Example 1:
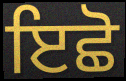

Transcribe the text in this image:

ਇਛੋ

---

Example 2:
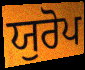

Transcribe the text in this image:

ਯੁਰੋਪ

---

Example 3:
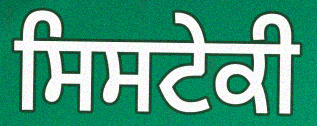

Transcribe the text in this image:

ਸਿਸਟੇਕੀ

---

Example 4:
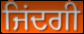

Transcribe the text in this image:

ਜਿਂਦਗੀ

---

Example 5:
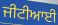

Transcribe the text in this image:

ਜੀਟੀਆਈ